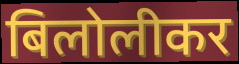
बिलोलीकर